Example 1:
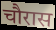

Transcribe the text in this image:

चौरास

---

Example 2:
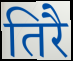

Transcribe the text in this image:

तिरै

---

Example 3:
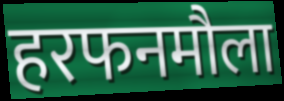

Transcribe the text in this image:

हरफनमौला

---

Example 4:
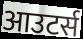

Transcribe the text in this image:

आउटर्स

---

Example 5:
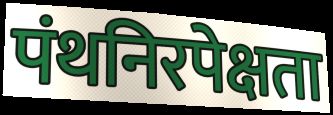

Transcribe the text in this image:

पंथनिरपेक्षता